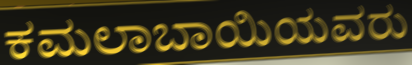
ಕಮಲಾಬಾಯಿಯವರು